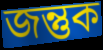
জন্তুক